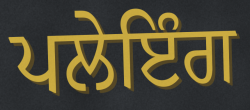
ਪਲੇਇੰਗ